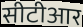
सीटीआर